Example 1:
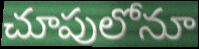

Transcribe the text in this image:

చూపులోనూ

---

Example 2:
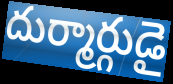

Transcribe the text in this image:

దుర్మార్గుడై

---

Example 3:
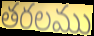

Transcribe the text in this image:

తరలము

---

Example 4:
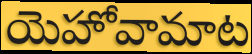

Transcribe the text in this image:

యెహోవామాట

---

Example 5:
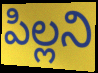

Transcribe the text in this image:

పిల్లని